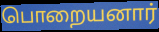
பொறையனார்